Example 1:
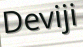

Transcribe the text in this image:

Deviji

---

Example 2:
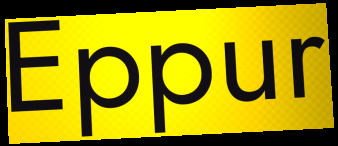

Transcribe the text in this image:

Eppur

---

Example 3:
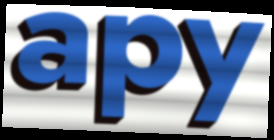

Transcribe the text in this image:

apy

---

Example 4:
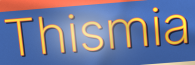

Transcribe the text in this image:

Thismia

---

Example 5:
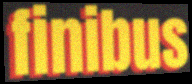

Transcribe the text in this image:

finibus